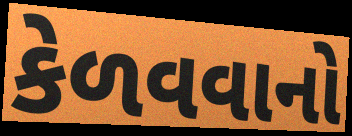
કેળવવાનો